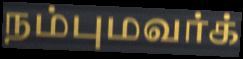
நம்புமவர்க்